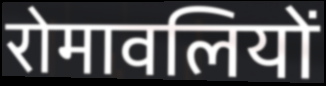
रोमावलियों